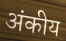
अंकीय